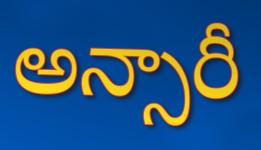
అన్సారీ